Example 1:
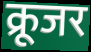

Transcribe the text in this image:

क्रूजर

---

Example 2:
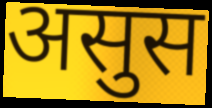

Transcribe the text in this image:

असुस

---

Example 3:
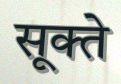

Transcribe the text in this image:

सूक्ते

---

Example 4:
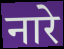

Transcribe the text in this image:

नारे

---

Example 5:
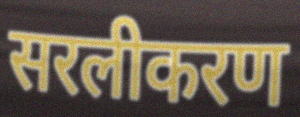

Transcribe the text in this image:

सरलीकरण